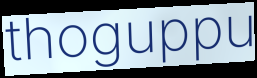
thoguppu